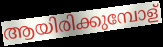
ആയിരിക്കുമ്പോള്